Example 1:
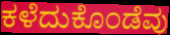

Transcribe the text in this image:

ಕಳೆದುಕೊಂಡೆವು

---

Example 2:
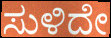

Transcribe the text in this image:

ಸುಳಿದೇ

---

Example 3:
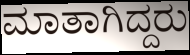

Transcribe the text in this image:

ಮಾತಾಗಿದ್ದರು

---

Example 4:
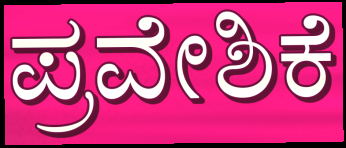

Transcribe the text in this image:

ಪ್ರವೇಶಿಕೆ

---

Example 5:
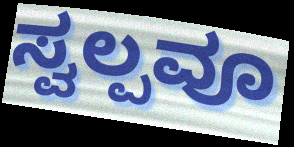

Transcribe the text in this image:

ಸ್ವಲ್ಪವೂ